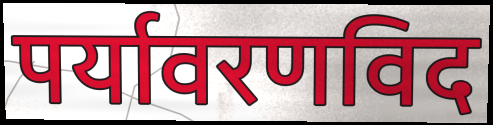
पर्यावरणविद